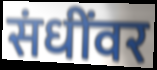
संधींवर